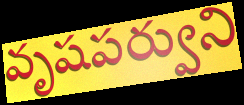
వృషపర్వుని